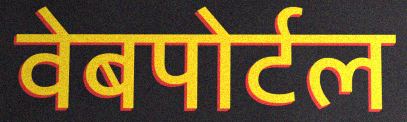
वेबपोर्टल